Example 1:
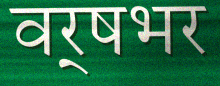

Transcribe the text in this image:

वर्षभर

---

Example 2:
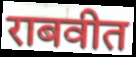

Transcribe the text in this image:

राबवीत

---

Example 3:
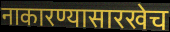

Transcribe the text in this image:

नाकारण्यासारखेच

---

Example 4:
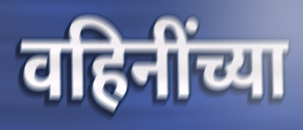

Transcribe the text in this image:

वहिनींच्या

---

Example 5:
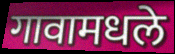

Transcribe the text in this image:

गावामधले